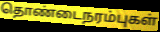
தொண்டைநரம்புகள்